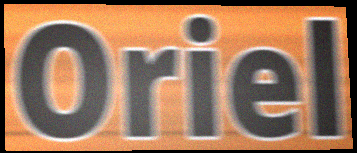
Oriel